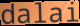
dalai